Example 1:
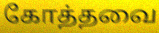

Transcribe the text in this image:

கோத்தவை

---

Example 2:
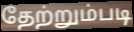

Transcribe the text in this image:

தேற்றும்படி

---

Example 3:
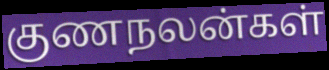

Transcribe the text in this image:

குணநலன்கள்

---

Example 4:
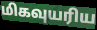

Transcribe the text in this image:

மிகவுயரிய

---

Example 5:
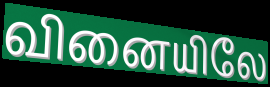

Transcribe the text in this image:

வினையிலே